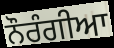
ਨੌਰੰਗੀਆ